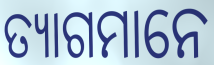
ତ୍ୟାଗମାନେ